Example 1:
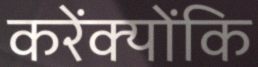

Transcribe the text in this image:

करेंक्योंकि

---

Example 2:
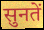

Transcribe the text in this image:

सुनतें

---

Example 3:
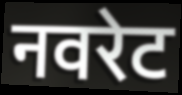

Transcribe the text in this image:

नवरेट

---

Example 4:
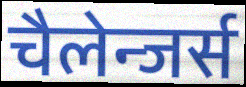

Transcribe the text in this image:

चैलेन्जर्स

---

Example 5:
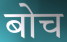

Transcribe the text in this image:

बोच